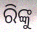
ରିଙ୍କୁ